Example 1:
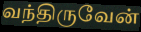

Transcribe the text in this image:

வந்திருவேன்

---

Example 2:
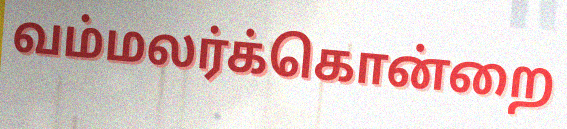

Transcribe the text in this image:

வம்மலர்க்கொன்றை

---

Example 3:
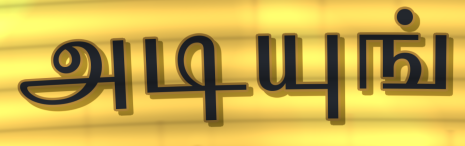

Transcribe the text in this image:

அடியுங்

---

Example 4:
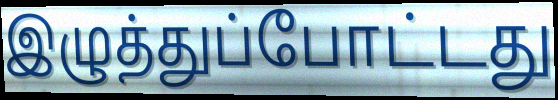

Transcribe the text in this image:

இழுத்துப்போட்டது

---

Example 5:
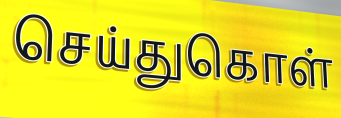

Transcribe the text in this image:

செய்துகொள்